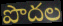
పొదల